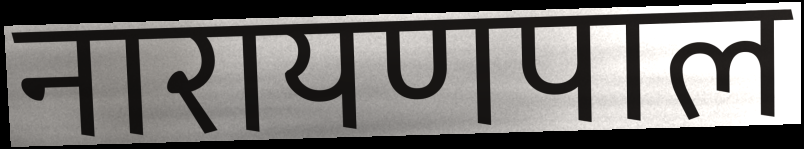
नारायणपाल